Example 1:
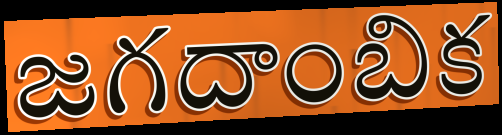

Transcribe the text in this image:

జగదాంబిక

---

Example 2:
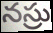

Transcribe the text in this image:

నస్రు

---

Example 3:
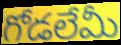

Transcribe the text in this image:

గోడలేమీ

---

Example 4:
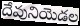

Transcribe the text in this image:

దేవునియెడల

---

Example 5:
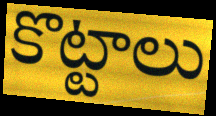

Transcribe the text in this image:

కొట్టాలు